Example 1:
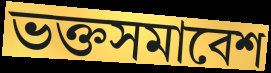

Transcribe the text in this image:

ভক্তসমাবেশ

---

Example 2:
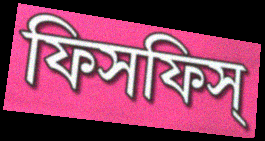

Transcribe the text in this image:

ফিসফিস্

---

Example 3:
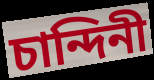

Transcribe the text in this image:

চান্দিনী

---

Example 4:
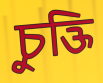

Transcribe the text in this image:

চুক্তি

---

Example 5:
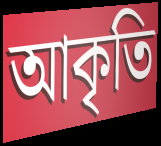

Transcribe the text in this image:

আকৃতি